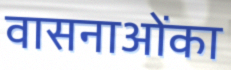
वासनाओंका